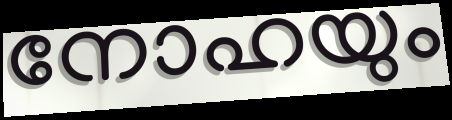
നോഹയും